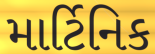
માર્ટિનિક